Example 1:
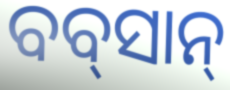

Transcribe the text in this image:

ବବ୍‌ସାନ୍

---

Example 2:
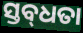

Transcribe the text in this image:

ସ୍ତବ୍‍ଧତା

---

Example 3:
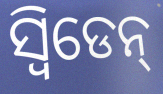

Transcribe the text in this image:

ସ୍ଵିଡେନ୍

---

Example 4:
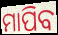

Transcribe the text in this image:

ମାପିବ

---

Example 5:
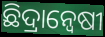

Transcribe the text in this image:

ଛିଦ୍ରାନ୍ୱେଷୀ